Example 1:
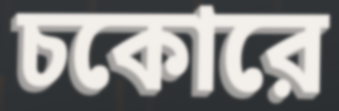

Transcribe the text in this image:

চকোরে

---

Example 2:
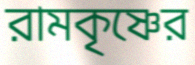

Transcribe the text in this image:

রামকৃষ্ণের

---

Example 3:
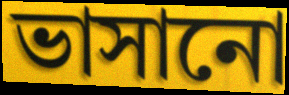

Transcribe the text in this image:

ভাসানো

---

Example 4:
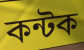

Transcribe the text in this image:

কন্টক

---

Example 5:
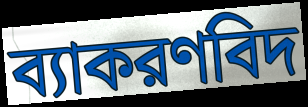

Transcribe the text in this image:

ব্যাকরণবিদ